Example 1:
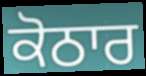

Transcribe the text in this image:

ਕੋਠਾਰ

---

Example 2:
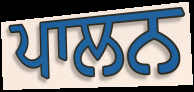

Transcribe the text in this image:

ਪਾਲਨ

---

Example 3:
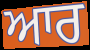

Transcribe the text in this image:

ਆਰ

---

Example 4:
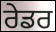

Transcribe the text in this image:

ਰੇਡਰ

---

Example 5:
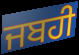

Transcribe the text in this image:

ਜਬਹੀ